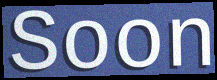
Soon